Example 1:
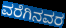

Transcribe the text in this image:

ವರೆಗಿನವರ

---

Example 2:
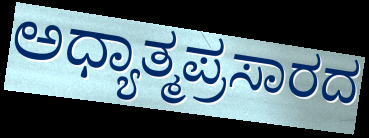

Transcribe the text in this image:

ಅಧ್ಯಾತ್ಮಪ್ರಸಾರದ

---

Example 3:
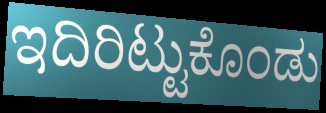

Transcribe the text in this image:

ಇದಿರಿಟ್ಟುಕೊಂಡು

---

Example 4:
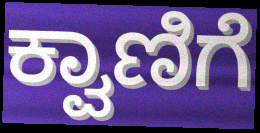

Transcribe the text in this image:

ಕ್ವಾಣಿಗೆ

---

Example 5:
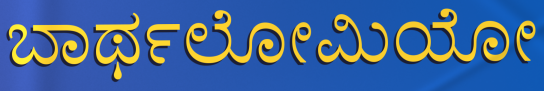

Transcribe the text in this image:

ಬಾರ್ಥಲೋಮಿಯೋ